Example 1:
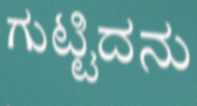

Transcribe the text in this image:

ಗುಟ್ಟಿದನು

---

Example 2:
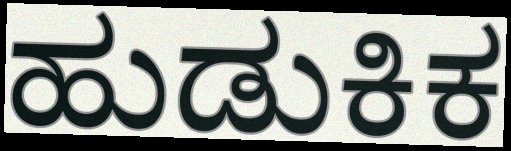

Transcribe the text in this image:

ಹುಡುಕಿಕ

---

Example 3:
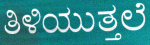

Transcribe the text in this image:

ತಿಳಿಯುತ್ತಲೆ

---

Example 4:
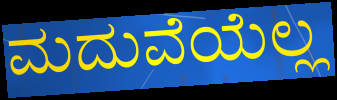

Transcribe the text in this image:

ಮದುವೆಯೆಲ್ಲ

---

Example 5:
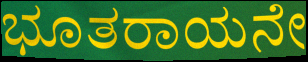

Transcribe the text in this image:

ಭೂತರಾಯನೇ